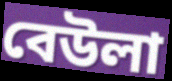
বেউলা